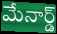
మేనార్డ్